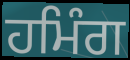
ਹਮਿੰਗ